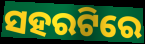
ସହରଟିରେ